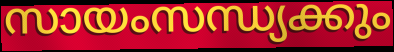
സായംസന്ധ്യക്കും